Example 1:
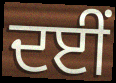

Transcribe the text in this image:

ਦਈਂ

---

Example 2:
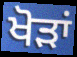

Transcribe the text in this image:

ਖੋੜਾਂ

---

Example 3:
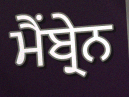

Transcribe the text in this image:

ਮੈਂਬ੍ਰੇਨ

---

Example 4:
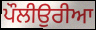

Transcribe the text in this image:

ਪੌਲੀਉਰੀਆ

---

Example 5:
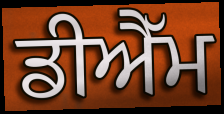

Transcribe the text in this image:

ਡੀਐੱਮ